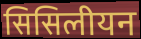
सिसिलीयन